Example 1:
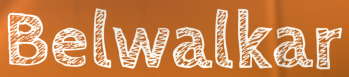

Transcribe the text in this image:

Belwalkar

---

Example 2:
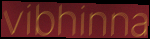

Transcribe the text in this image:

vibhinna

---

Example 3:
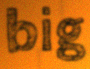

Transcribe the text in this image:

big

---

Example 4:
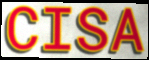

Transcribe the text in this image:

CISA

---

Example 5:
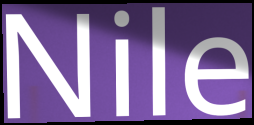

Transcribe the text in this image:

Nile